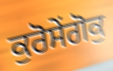
ਕੁਰੋਸੇਂਗੋਕੁ